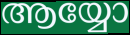
ആയ്യോ